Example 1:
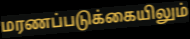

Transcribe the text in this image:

மரணப்படுக்கையிலும்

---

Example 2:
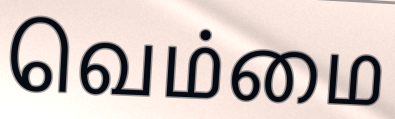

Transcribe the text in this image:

வெம்மை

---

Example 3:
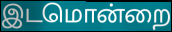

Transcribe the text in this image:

இடமொன்றை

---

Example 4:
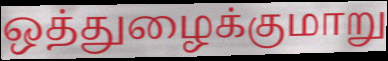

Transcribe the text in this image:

ஒத்துழைக்குமாறு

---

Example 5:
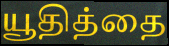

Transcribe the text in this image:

யூதித்தை